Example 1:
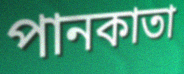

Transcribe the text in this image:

পানকাতা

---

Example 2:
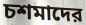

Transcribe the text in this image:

চশমাদের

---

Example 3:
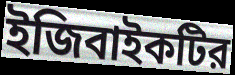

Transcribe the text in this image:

ইজিবাইকটির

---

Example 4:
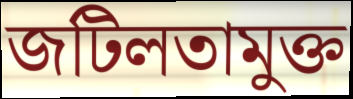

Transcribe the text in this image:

জটিলতামুক্ত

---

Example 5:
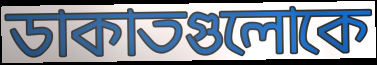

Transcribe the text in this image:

ডাকাতগুলোকে